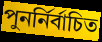
পুনর্নির্বাচিত